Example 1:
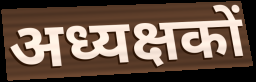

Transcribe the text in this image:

अध्यक्षकों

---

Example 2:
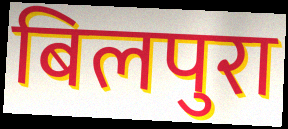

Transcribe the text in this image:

बिलपुरा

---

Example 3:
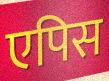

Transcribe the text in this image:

एपिस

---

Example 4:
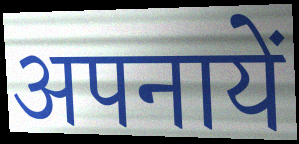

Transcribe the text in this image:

अपनायें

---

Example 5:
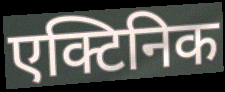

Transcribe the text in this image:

एक्टिनिक